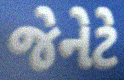
જેનેટે